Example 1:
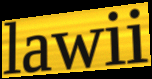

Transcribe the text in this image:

lawii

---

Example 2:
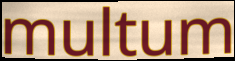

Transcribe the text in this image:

multum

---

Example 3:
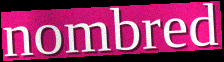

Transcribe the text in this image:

nombred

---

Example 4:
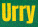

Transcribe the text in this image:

Urry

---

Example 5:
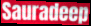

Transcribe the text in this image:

Sauradeep